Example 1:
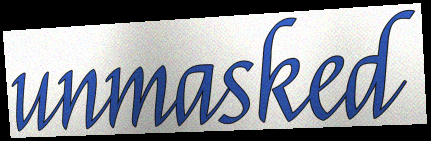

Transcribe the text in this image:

unmasked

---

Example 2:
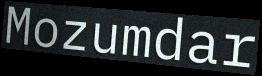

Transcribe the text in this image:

Mozumdar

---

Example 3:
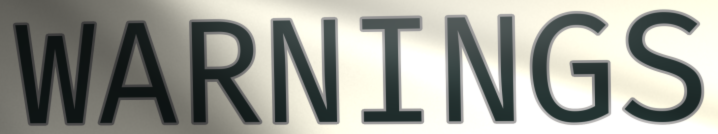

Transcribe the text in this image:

WARNINGS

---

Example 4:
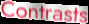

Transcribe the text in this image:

Contrasts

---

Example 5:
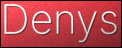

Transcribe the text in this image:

Denys